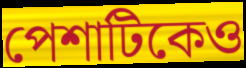
পেশাটিকেও